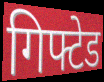
गिफ्टेड